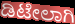
ಡಿಟೇಲಾಗಿ